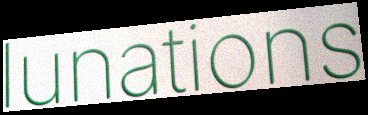
lunations